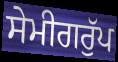
ਸੇਮੀਗਰੁੱਪ